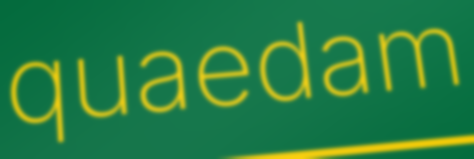
quaedam